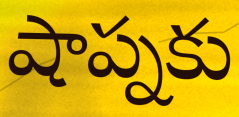
షాప్నకు